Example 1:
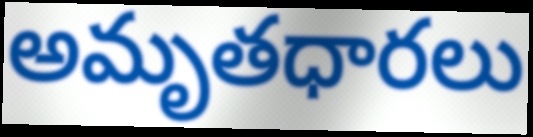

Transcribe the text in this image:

అమృతధారలు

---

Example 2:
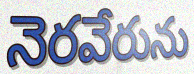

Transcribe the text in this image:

నెరవేరును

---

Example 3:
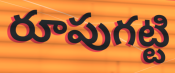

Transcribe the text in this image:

రూపుగట్టి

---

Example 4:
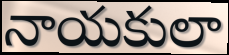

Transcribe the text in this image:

నాయకులా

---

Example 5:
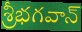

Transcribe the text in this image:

శ్రీభగవాన్